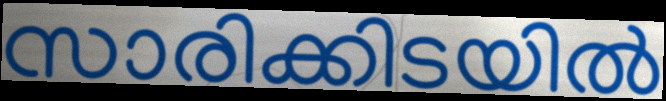
സാരിക്കിടയിൽ